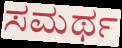
ಸಮರ್ಥ